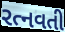
રત્નવતી